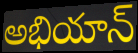
అభియాన్